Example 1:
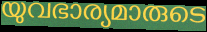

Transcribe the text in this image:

യുവഭാര്യമാരുടെ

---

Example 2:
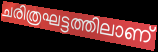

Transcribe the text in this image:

ചരിത്രഘട്ടത്തിലാണ്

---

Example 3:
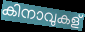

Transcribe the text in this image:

കിനാവുകള്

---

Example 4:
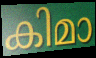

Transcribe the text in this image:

കിമാ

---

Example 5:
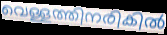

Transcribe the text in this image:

വെള്ളത്തിനരികിൽ